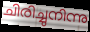
ചിരിച്ചുനിന്നു